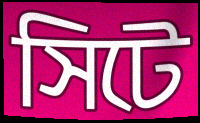
সিটে